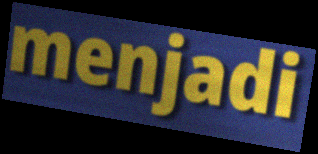
menjadi